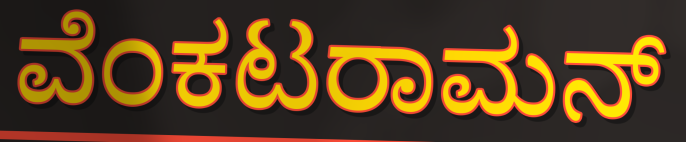
ವೆಂಕಟರಾಮನ್